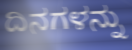
ದಿನಗಳನ್ನು